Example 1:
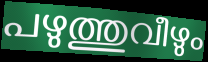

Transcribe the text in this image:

പഴുത്തുവീഴും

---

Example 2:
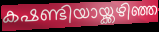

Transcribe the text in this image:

കഷണ്ടിയായ്ക്കഴിഞ്ഞ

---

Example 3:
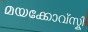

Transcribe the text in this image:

മയക്കോവ്സ്കി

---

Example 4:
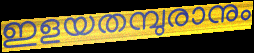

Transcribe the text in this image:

ഇളയതമ്പുരാനും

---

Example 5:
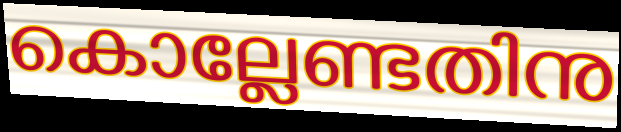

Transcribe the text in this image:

കൊല്ലേണ്ടതിനു